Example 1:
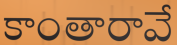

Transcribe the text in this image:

కాంతారావే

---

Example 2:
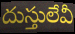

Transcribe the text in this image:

దుస్తులేవీ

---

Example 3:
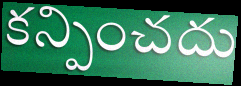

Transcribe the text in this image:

కన్పించదు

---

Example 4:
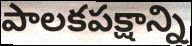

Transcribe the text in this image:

పాలకపక్షాన్ని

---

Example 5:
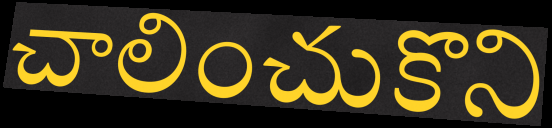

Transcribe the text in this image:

చాలించుకొని